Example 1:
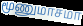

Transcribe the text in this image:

மூணுமாசமா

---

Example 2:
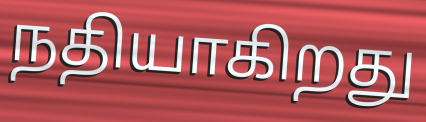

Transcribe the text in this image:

நதியாகிறது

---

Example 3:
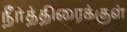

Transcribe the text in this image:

நீர்த்திரைக்குள்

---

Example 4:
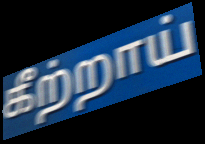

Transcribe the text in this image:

கீற்றாய்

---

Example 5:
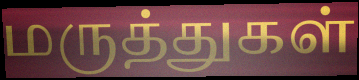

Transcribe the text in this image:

மருத்துகள்